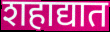
शहाद्यात